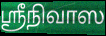
ஸ்ரீநிவாஸ